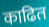
काढित